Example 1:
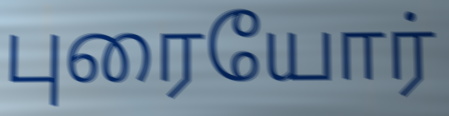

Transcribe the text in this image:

புரையோர்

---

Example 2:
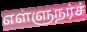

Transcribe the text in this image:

எள்ளுநர்ச்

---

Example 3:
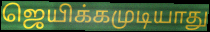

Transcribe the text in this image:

ஜெயிக்கமுடியாது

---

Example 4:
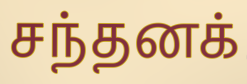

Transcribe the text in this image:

சந்தனக்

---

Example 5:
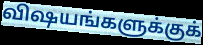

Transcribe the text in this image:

விஷயங்களுக்குக்